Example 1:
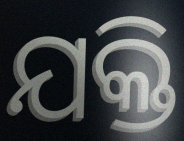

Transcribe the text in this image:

ଯକ୍ତି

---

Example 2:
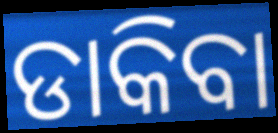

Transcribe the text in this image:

ଡାକିବା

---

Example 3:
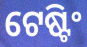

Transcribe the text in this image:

ଟେଷ୍ଟିଂ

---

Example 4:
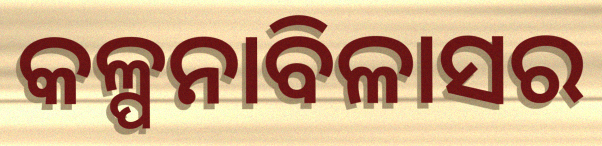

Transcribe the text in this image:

କଳ୍ପନାବିଳାସର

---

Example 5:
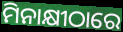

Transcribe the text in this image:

ମିନାକ୍ଷୀଠାରେ